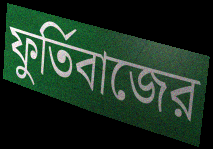
ফুর্তিবাজের